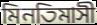
মিনতিমাসী